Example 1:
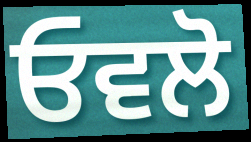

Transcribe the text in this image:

ਓਵਲੋ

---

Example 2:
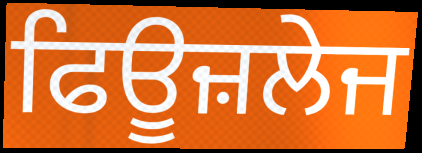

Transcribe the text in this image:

ਫਿਊਜ਼ਲੇਜ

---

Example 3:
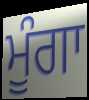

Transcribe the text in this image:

ਮੂੰਗਾ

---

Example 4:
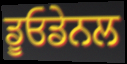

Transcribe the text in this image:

ਡੂਓਡੇਨਲ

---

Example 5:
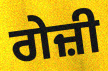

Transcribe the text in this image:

ਗੇਜ਼ੀ